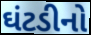
ઘંટડીનો